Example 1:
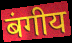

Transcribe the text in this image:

बंगीय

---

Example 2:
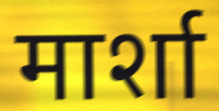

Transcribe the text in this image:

मार्शा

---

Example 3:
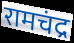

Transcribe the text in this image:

रामचंद्र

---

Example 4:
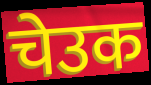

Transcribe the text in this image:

चेउक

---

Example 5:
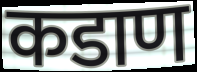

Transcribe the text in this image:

कडाण